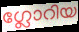
ഗ്ലോറിയ